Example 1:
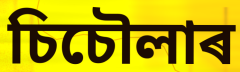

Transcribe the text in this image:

চিচৌলাৰ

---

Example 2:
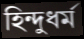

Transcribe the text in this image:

হিন্দুধৰ্ম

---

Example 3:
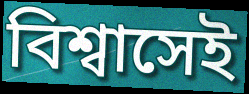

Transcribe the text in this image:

বিশ্বাসেই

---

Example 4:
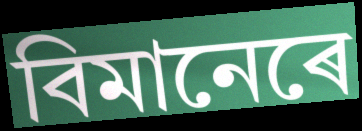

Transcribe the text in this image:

বিমানেৰে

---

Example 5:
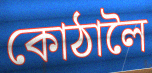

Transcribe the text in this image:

কোঠালৈ